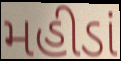
મહીડાં